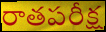
రాతపరీక్ష